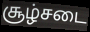
சூழ்சடை